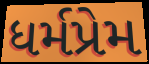
ધર્મપ્રેમ